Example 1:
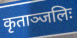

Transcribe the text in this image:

कृताञ्जलिः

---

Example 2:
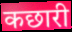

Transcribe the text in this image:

कछारी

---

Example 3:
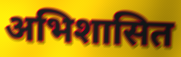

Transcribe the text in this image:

अभिशासित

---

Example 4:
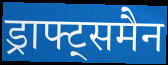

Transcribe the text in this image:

ड्राफ्ट्समैन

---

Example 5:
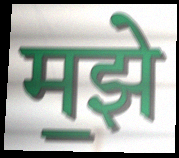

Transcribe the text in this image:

म॒झे